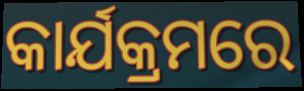
କାର୍ଯକ୍ରମରେ